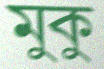
মুকু